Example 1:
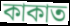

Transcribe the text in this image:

কাকাত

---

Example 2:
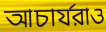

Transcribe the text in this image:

আচার্যরাও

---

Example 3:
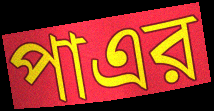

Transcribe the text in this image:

পাএর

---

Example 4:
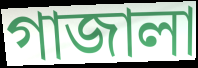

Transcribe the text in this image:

গাজালা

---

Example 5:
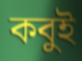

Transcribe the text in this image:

কবুই